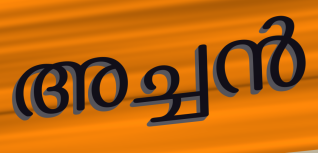
അച്ചൻ